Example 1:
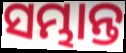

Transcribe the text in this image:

ସମ୍ଭାନ୍ତ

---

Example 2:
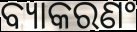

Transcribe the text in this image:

ବ୍ୟାକରଣଂ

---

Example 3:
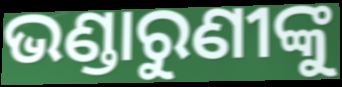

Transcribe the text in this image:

ଭଣ୍ଡାରୁଣୀଙ୍କୁ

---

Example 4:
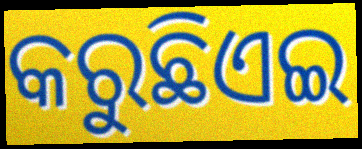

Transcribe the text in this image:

କରୁଛିଏଇ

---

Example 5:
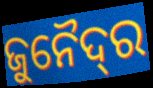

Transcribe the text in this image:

ଜୁନୈଦ୍‌ର